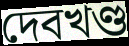
দেবখণ্ড